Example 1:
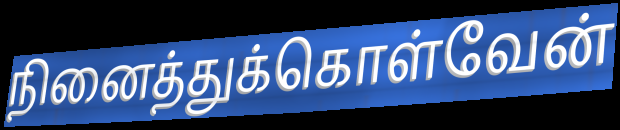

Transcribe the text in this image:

நினைத்துக்கொள்வேன்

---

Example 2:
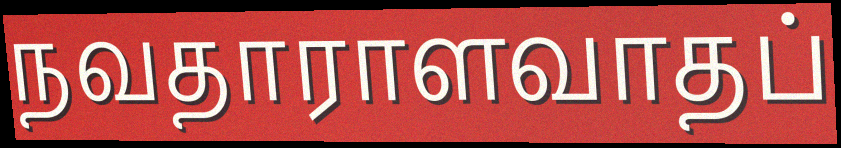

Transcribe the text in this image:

நவதாராளவாதப்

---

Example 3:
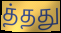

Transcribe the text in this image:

த்தது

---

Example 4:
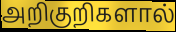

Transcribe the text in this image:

அறிகுறிகளால்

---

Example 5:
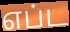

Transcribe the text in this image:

எப்ட